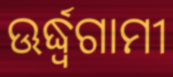
ଊର୍ଦ୍ଧ୍ୱଗାମୀ